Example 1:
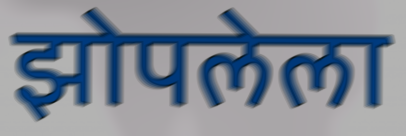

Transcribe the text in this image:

झोपलेला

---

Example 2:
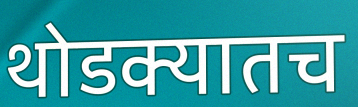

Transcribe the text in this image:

थोडक्यातच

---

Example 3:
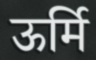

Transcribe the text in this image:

ऊर्मि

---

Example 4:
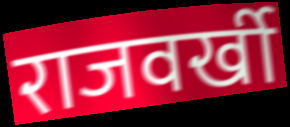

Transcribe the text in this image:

राजवर्खी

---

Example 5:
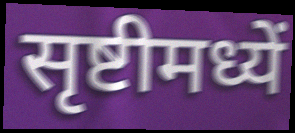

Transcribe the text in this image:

सृष्टीमध्यें